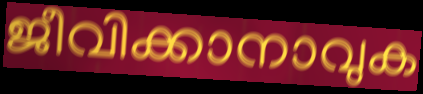
ജീവിക്കാനാവുക